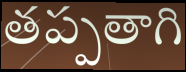
తప్పతాగి